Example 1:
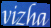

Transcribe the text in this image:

vizha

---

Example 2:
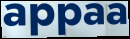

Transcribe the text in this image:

appaa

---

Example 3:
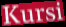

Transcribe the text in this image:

Kursi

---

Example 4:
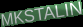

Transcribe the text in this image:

MKSTALIN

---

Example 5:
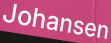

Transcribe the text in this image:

Johansen